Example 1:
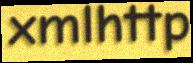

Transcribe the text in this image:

xmlhttp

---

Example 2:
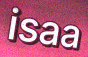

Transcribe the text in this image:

isaa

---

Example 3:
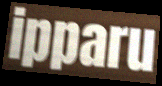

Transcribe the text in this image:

ipparu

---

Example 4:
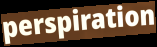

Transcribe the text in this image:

perspiration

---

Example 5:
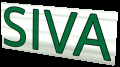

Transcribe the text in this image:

SIVA